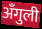
अँगुली